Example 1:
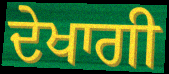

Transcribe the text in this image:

ਦੇਖਾਗੀ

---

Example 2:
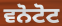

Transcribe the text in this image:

ਵਨੋਟੋਟ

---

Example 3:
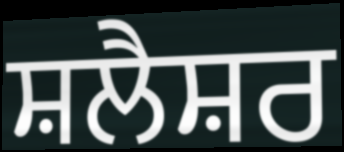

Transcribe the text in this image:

ਸ਼ਲੈਸ਼ਰ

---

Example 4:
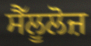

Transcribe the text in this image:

ਸੈੱਲੂਲੋਜ਼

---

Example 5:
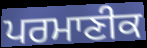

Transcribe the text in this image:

ਪਰਮਾਣੀਕ